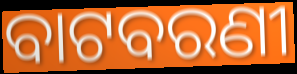
ବାଟବରଣୀ